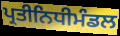
ਪ੍ਰਤੀਨਿਧੀਮੰਡਲ